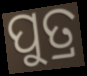
ପୁତ୍ର